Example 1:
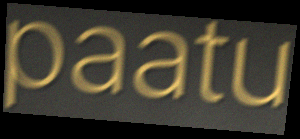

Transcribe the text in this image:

paatu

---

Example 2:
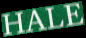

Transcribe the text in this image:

HALE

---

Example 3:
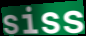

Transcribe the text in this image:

siss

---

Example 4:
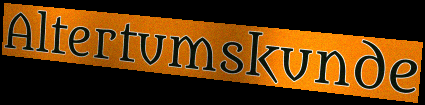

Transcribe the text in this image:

Altertumskunde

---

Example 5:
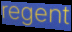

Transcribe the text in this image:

regent